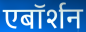
एबॉर्शन